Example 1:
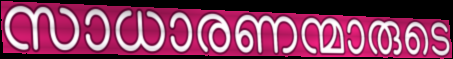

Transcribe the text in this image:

സാധാരണന്മാരുടെ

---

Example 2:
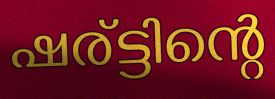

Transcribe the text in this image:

ഷര്ട്ടിന്റെ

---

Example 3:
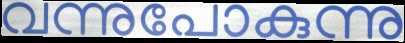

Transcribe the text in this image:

വന്നുപോകുന്നു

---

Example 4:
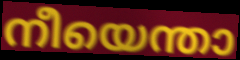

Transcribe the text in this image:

നീയെന്താ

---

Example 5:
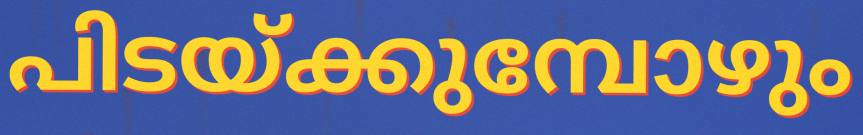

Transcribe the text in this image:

പിടയ്ക്കുമ്പോഴും